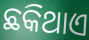
ଛକିଥାଏ